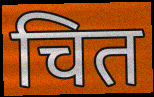
चित